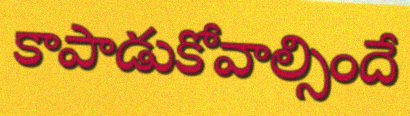
కాపాడుకోవాల్సిందే